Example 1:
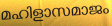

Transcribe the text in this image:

മഹിളാസമാജം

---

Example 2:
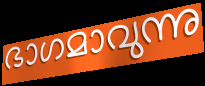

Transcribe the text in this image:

ഭാഗമാവുന്നു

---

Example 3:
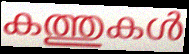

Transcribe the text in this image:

കത്തുകൾ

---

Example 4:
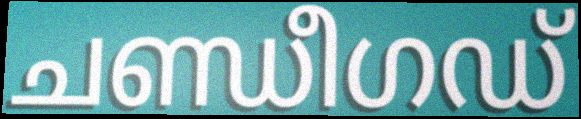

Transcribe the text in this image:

ചണ്ഡീഗഡ്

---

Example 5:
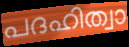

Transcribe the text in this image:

പദഹിത്വാ